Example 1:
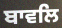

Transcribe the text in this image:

ਬਾਵਲਿ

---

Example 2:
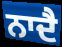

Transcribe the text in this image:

ਨਾਦੈ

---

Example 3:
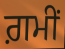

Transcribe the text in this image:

ਗ਼ਮੀਂ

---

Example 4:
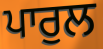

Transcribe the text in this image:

ਪਾਰੁਲ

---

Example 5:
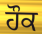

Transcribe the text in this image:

ਹੌਕ